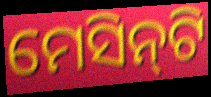
ମେସିନ୍‌ଟି